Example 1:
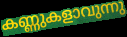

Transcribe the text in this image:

കണ്ണുകളാവുന്നു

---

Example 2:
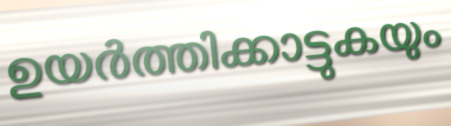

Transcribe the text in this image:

ഉയർത്തിക്കാട്ടുകയും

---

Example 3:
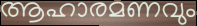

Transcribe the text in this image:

ആഹാരമണവും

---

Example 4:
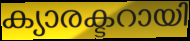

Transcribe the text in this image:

ക്യാരക്ടറായി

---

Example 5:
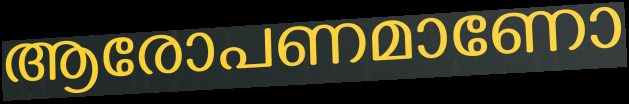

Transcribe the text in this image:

ആരോപണമാണോ